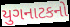
યુગનાટકનો